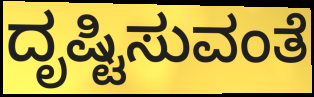
ದೃಷ್ಟಿಸುವಂತೆ